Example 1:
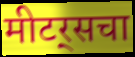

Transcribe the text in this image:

मीटर्सचा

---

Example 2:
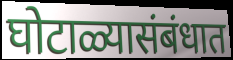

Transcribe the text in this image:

घोटाळ्यासंबंधात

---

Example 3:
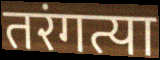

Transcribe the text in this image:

तरंगत्या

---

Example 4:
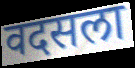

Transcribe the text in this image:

वदसला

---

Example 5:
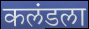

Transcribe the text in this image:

कलंडला